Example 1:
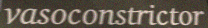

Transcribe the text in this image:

vasoconstrictor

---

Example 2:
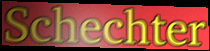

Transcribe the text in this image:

Schechter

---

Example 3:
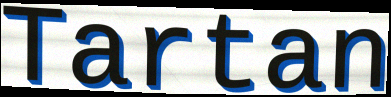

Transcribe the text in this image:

Tartan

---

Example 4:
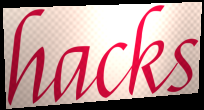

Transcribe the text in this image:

hacks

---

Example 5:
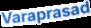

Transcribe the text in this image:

Varaprasad